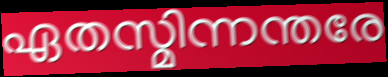
ഏതസ്മിന്നന്തരേ